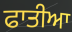
ਫਾਤੀਆ